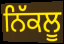
ਨਿੱਕਲੂ